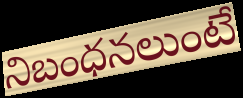
నిబంధనలుంటే